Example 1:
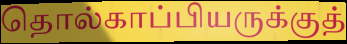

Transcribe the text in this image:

தொல்காப்பியருக்குத்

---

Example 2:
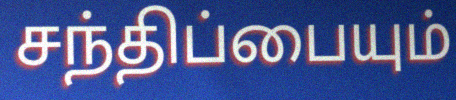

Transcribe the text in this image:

சந்திப்பையும்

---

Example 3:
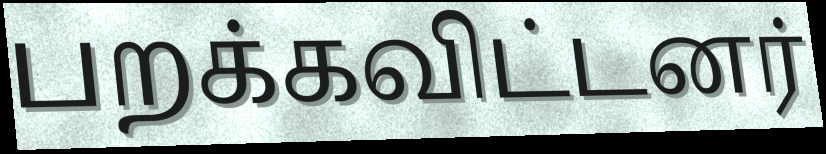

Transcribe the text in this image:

பறக்கவிட்டனர்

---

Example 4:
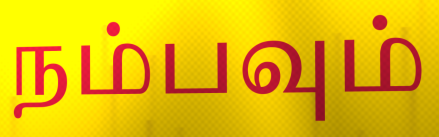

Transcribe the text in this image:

நம்பவும்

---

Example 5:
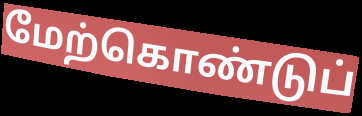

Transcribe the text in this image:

மேற்கொண்டுப்